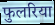
फुलरिया